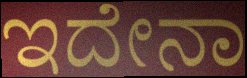
ಇದೇನಾ